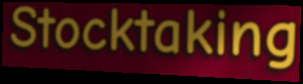
Stocktaking